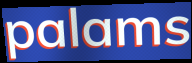
palams